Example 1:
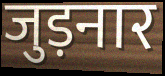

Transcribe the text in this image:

जुड़नार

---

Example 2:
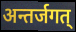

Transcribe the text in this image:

अन्तर्जगत्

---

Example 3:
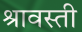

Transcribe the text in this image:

श्रावस्ती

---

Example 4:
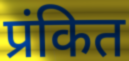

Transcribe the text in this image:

प्रंकित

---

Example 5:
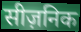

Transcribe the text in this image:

सीज़निक